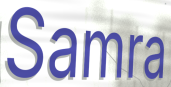
Samra